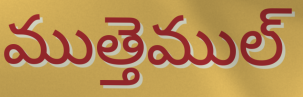
ముత్తెముల్